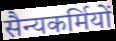
सैन्यकर्मियों